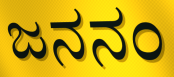
ಜನನಂ